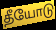
தீயோடு